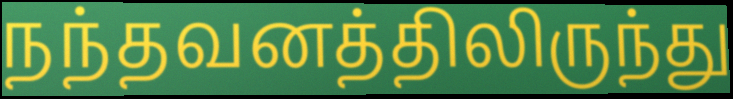
நந்தவனத்திலிருந்து